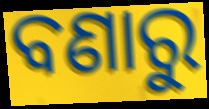
ବଣାରୁ